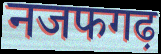
नजफगढ़